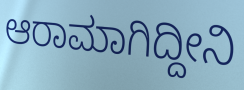
ಆರಾಮಾಗಿದ್ದೀನಿ